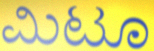
ಮಿಟೂ